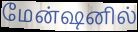
மேன்ஷனில்